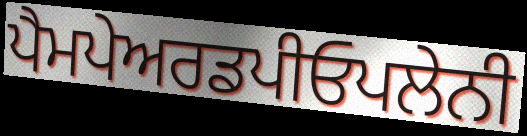
ਪੈਮਪੇਅਰਡਪੀਓਪਲੇਨੀ